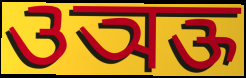
ওঅক্ত